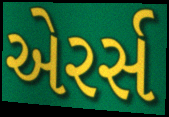
એરર્સ